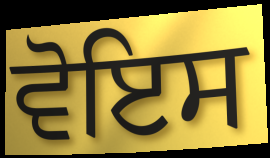
ਵੋਇਸ